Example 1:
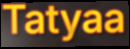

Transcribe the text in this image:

Tatyaa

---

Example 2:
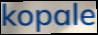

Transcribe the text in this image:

kopale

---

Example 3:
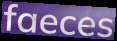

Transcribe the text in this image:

faeces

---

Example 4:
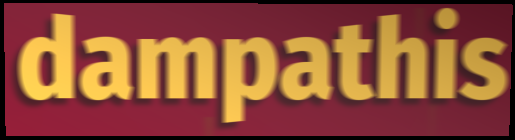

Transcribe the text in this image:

dampathis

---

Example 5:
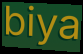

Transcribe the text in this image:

biya